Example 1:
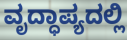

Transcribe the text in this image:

ವೃದ್ಧಾಪ್ಯದಲ್ಲಿ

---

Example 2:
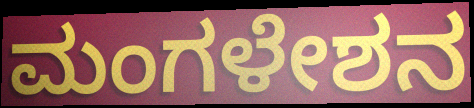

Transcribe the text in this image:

ಮಂಗಳೇಶನ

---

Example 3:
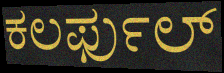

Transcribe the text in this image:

ಕಲರ್ಫುಲ್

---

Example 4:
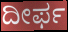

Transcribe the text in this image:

ದೀರ್ಫ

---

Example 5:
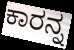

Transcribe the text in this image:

ಕಾರನ್ನ